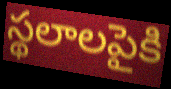
స్థలాలపైకి